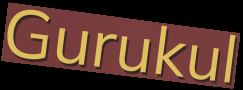
Gurukul